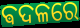
ଵଦଳରେ